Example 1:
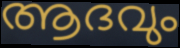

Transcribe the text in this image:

ആദവും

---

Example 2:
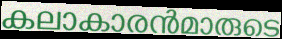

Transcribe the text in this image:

കലാകാരൻമാരുടെ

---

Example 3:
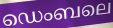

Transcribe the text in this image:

ഡെംബലെ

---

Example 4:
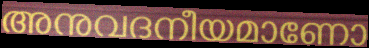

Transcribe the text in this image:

അനുവദനീയമാണോ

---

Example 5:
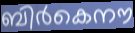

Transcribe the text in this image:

ബിർകെനൗ